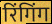
रिंगिंग